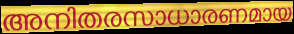
അനിതരസാധാരണമായ